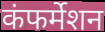
कंफर्मेशन